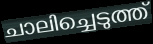
ചാലിച്ചെടുത്ത്